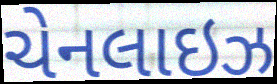
ચેનલાઇઝ